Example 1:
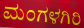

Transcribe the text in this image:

ಮಂಗಳಗಿರಿ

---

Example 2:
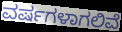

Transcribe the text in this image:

ವರ್ಷಗಳಾಗಲಿವೆ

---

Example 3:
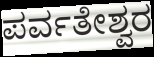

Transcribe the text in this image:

ಪರ್ವತೇಶ್ವರ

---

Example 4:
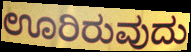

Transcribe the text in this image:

ಊರಿರುವುದು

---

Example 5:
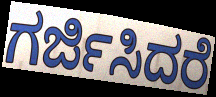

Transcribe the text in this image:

ಗರ್ಜಿಸಿದರೆ